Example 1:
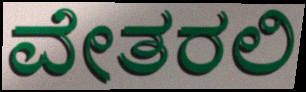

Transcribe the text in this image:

ವೇತರಲಿ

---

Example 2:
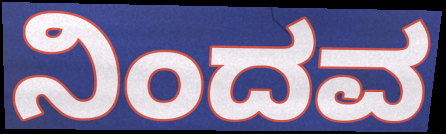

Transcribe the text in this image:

ನಿಂದವ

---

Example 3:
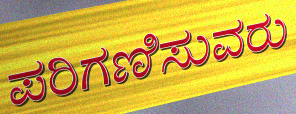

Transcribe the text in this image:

ಪರಿಗಣಿಸುವರು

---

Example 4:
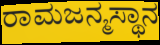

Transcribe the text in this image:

ರಾಮಜನ್ಮಸ್ಥಾನ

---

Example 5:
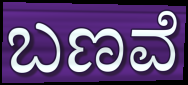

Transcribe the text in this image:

ಬಣವೆ